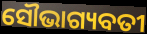
ସୌଭାଗ୍ୟବତୀ